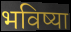
भविष्या